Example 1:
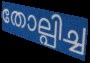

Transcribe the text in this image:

തോല്പിച്ച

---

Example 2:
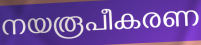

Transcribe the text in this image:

നയരൂപീകരണ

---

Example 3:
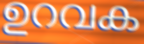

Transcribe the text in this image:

ഉറവക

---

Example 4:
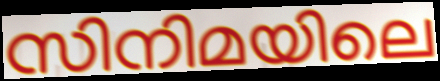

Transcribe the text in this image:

സിനിമയിലെ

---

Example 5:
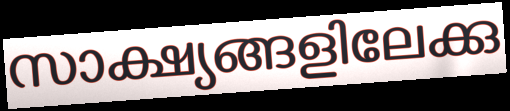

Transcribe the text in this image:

സാക്ഷ്യങ്ങളിലേക്കു